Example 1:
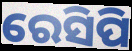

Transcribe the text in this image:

ରେସିପି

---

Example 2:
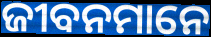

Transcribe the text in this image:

ଜୀବନମାନେ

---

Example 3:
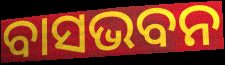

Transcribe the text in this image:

ବାସଭବନ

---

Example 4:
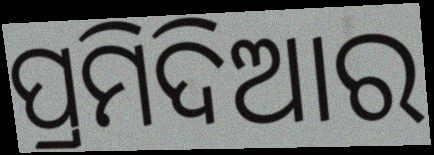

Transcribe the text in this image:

ପ୍ରମିଦିଆର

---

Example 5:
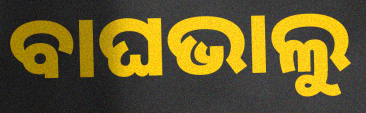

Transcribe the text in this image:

ବାଘଭାଲୁ